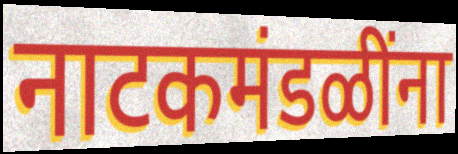
नाटकमंडळींना